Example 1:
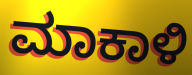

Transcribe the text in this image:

ಮಾಕಾಳಿ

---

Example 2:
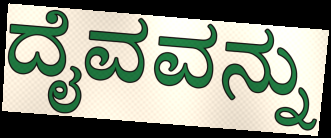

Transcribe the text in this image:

ದೈವವನ್ನು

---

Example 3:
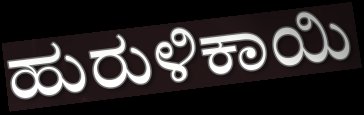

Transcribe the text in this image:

ಹುರುಳಿಕಾಯಿ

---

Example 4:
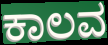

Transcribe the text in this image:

ಕಾಲವ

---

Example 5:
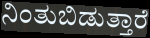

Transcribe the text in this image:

ನಿಂತುಬಿಡುತ್ತಾರೆ